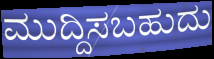
ಮುದ್ದಿಸಬಹುದು